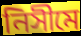
নিসীমে